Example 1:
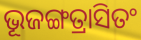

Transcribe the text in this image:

ଭୂଜଙ୍ଗତ୍ରାସିତଂ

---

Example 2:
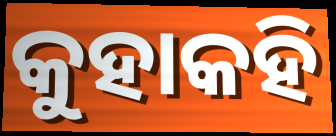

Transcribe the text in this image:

କୁହାକହି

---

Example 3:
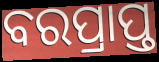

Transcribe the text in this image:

ବରପ୍ରାପ୍ତ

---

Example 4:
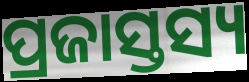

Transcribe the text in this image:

ପ୍ରଜାସ୍ତସ୍ୟ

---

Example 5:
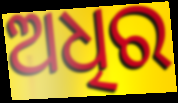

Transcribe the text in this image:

ଅଧିର